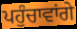
ਪਹੁੰਚਾਵਾਂਗੇ